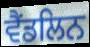
ਵੈਂਡਲਿਨ